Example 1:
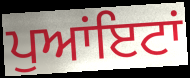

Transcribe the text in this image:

ਪੁਆਂਇਟਾਂ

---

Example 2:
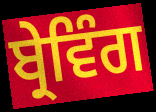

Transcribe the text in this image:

ਬ੍ਰੇਵਿੰਗ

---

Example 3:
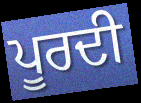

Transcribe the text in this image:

ਪੂਰਦੀ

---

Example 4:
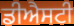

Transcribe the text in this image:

ਡੀਐਸਟੀ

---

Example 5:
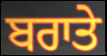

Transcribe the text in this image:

ਬਰਾਤੇ